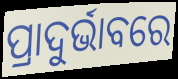
ପ୍ରାଦୁର୍ଭାବରେ